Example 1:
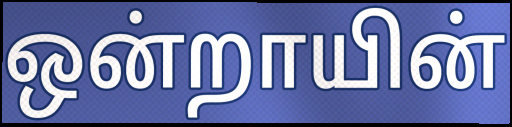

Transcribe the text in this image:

ஒன்றாயின்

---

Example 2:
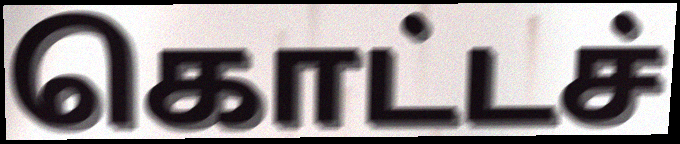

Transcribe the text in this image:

கொட்டச்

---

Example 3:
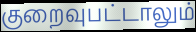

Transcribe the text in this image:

குறைவுபட்டாலும்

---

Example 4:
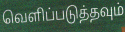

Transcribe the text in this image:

வெளிப்படுத்தவும்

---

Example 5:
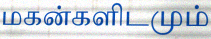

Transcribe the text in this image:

மகன்களிடமும்